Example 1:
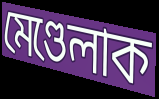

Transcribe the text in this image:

মেণ্ডেলাক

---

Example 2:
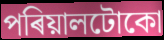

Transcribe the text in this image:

পৰিয়ালটোকো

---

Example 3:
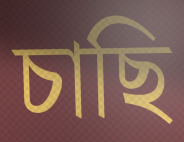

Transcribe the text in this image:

চাছি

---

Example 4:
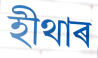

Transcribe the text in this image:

হীথাৰ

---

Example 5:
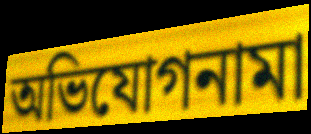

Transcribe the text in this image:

অভিযোগনামা